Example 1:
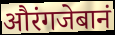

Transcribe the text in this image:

औरंगजेबानं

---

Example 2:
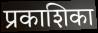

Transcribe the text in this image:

प्रकाशिका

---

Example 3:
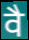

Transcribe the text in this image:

वै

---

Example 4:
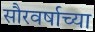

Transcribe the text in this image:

सौरवर्षाच्या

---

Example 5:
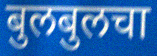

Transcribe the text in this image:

बुलबुलचा